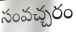
సంవచ్చరం